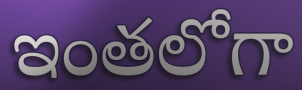
ఇంతలోగా